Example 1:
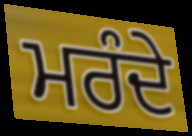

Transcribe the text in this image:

ਮਰੰਦੇ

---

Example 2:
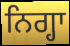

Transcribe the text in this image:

ਨਿਗ੍ਹਾ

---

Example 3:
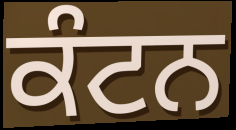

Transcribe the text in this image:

ਕੰਟਨ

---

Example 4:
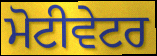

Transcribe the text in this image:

ਮੋਟੀਵੇਟਰ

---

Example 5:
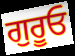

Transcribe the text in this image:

ਗੁਰੂਓ